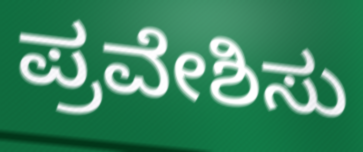
ಪ್ರವೇಶಿಸು